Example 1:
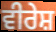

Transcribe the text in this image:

ਵੀਰੇਸ਼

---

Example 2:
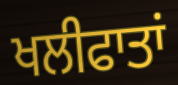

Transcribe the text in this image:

ਖਲੀਫਾਤਾਂ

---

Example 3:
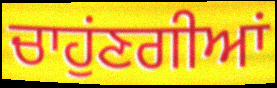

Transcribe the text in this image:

ਚਾਹੁਂਣਗੀਆਂ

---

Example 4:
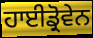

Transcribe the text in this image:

ਹਾਈਡ੍ਰੋਵੇਨ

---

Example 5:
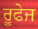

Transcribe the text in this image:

ਰੂਫੇਜ